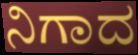
ನಿಗಾದ